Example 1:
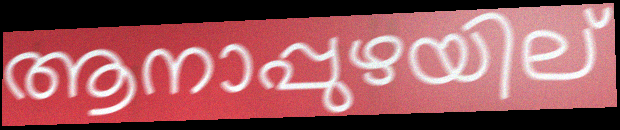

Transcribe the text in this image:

ആനാപ്പുഴയില്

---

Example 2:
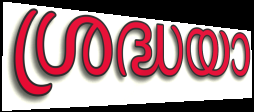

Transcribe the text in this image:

ശ്രദ്ധയാ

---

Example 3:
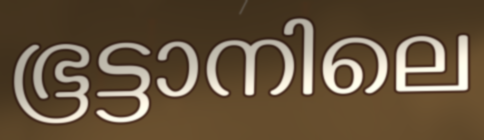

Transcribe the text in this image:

ഭൂട്ടാനിലെ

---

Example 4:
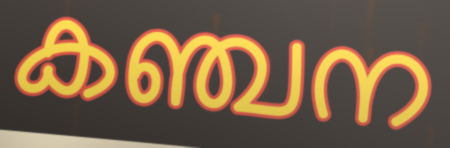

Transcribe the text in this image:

കഞ്ചന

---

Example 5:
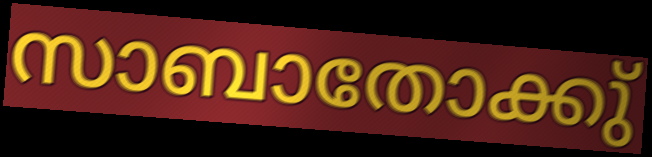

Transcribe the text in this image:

സാബാതോക്കു്